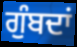
ਗੁੰਬਦਾਂ